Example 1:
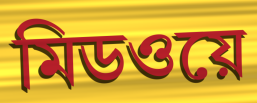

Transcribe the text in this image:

মিডওয়ে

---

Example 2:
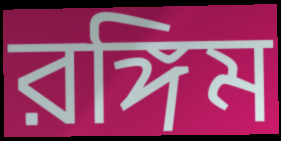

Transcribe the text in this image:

রঙ্গিম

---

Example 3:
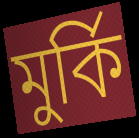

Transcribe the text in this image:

মুর্কি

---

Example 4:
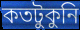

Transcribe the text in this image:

কতটুকুনি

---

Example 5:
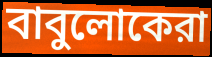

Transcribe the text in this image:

বাবুলোকেরা